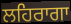
ਲਹਿਰਾਗਾ